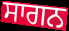
ਸਾਗਨ